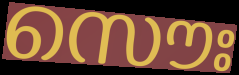
സൌഃ